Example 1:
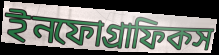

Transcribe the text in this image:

ইনফোগ্রাফিকস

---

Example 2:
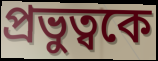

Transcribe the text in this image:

প্রভুত্বকে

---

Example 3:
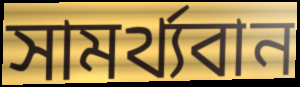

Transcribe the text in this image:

সামর্থ্যবান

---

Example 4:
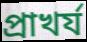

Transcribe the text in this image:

প্রাখর্য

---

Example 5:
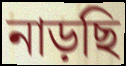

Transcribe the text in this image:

নাড়ছি